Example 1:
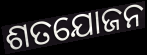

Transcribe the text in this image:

ଶତଯୋଜନ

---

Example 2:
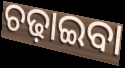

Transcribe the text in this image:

ଚଢ଼ାଇବା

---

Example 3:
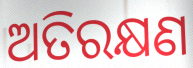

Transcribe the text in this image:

ଅତିରକ୍ଷଣ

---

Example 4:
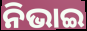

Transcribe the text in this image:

ନିଭାଇ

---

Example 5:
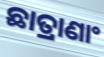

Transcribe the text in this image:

ଛାତ୍ରାଣାଂ